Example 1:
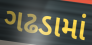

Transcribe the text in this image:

ગઢડામાં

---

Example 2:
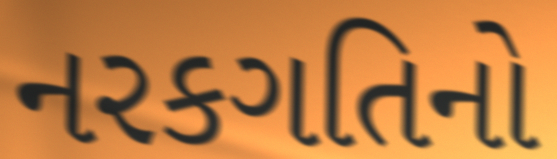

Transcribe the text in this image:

નરકગતિનો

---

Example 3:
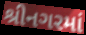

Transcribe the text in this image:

શ્રીનગરમાં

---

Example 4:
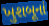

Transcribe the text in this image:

ખુશબૂનાં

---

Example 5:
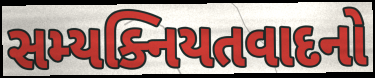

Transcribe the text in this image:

સમ્યક્નિયતવાદનો